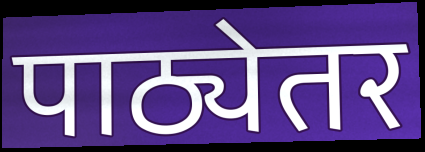
पाठ्येतर